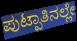
ಪುಟ್ಪಾತಿನಲ್ಲೇ